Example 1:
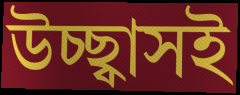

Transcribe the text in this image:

উচ্ছ্বাসই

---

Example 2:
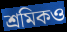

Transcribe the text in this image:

শ্রমিকও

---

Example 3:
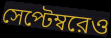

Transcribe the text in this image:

সেপ্টেম্বরেও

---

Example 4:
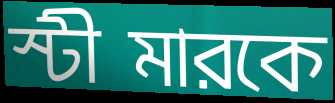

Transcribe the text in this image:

স্টীমারকে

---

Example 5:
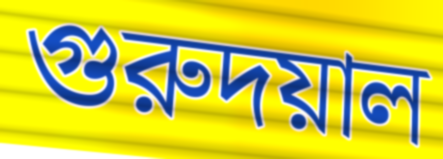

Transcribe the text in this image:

গুরুদয়াল